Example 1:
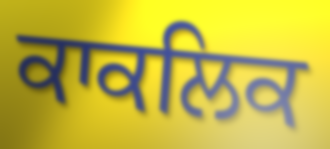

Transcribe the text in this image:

ਕਾਕਲਿਕ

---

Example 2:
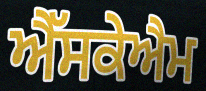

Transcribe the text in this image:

ਐੱਸਕੇਐਮ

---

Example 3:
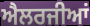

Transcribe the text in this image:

ਐਲਰਜੀਆਂ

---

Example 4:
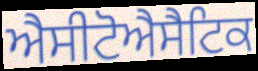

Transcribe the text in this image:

ਐਸੀਟੋਐਸੈਟਿਕ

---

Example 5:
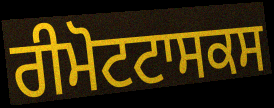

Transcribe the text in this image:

ਰੀਮੋਟਟਾਸਕਸ